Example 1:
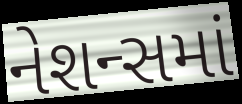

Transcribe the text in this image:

નેશન્સમાં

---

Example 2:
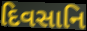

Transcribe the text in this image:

દિવસાનિ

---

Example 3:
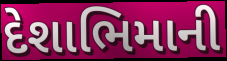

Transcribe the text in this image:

દેશાભિમાની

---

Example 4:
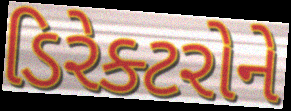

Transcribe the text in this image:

ડિરેક્ટરોને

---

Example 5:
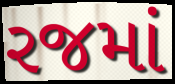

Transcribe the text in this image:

રજમાં